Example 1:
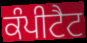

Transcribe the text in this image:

ਕੰਪੀਟੈਟ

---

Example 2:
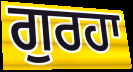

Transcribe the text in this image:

ਗੁਰਹਾ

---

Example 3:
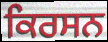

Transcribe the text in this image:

ਕਿਰਸਨ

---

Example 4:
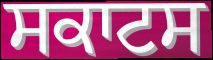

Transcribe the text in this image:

ਸਕਾਟਸ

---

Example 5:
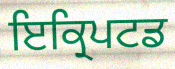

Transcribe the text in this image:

ਇਕ੍ਰਿਪਟਡ